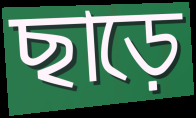
ছাড়ে